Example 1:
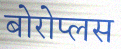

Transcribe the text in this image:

बोरोप्लस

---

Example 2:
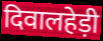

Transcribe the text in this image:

दिवालहेड़ी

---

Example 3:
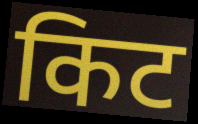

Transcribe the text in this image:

किट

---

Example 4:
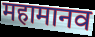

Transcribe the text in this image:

महामानव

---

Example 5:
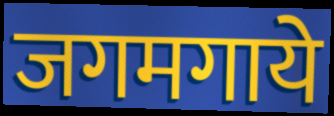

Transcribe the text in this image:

जगमगाये